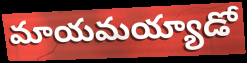
మాయమయ్యాడో